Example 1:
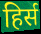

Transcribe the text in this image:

हिर्स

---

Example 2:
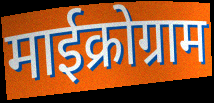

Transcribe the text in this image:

माईक्रोग्राम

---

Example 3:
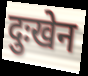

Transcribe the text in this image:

दुःखेन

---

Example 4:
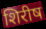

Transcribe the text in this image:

शिरीष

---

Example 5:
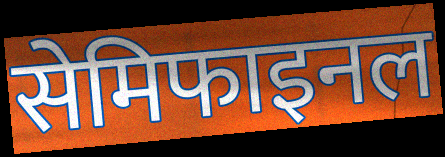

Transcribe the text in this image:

सेमिफाइनल